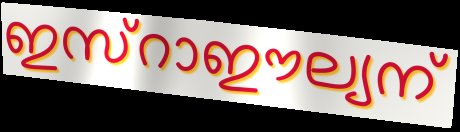
ഇസ്റാഈല്യന്